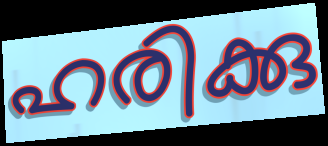
ഹരിക്കു